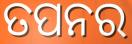
ତପନର